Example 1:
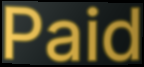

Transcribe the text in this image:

Paid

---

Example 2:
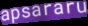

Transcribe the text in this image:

apsararu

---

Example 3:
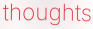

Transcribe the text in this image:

thoughts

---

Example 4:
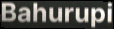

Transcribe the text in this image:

Bahurupi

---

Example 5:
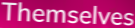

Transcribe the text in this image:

Themselves